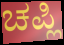
ಚಪ್ಲಿ